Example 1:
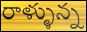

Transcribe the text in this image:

రాళ్ళున్న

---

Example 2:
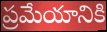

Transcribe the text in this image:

ప్రమేయానికి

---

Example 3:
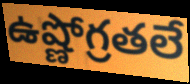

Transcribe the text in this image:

ఉష్ణోగ్రతలే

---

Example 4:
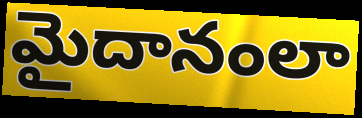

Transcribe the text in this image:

మైదానంలా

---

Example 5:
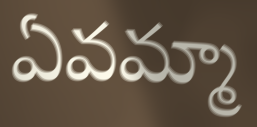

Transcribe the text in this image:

ఏవమ్మా